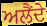
ਅਲੈਂਦੇ